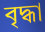
বৃদ্ধা